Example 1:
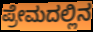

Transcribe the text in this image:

ಪ್ರೇಮದಲ್ಲಿನ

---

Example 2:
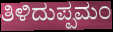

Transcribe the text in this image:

ತಿಳಿದುಪ್ಪಮಂ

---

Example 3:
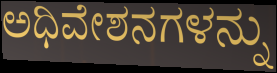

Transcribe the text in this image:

ಅಧಿವೇಶನಗಳನ್ನು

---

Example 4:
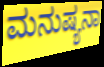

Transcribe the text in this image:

ಮನುಷ್ಯನಾ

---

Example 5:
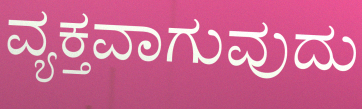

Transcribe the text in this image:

ವ್ಯಕ್ತವಾಗುವುದು